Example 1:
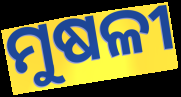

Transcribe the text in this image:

ମୁଷଳୀ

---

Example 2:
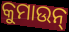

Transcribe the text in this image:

କୁମାଉନ୍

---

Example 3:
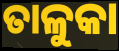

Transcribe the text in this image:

ତାଳୁକା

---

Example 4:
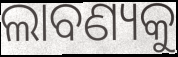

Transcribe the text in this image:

ଲାବଣ୍ୟକୁ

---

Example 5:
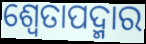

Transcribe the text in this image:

ଶ୍ଵେତାପଦ୍ମାର